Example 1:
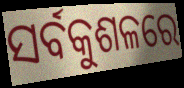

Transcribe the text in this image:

ସର୍ବକୁଶଳରେ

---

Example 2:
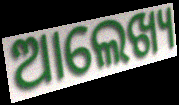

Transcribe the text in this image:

ଆଲେଖ୍ୟ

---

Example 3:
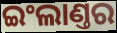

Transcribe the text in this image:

ଇଂଲାଣ୍ତର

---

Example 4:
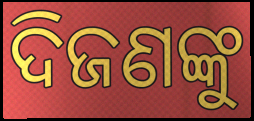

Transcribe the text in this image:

ଦିଜଣଙ୍କୁ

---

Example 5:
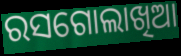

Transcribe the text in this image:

ରସଗୋଲାଖିଆ